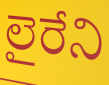
లైరేని